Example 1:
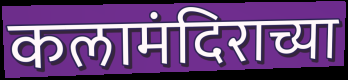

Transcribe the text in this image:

कलामंदिराच्या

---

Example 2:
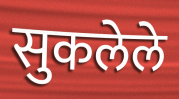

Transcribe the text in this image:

सुकलेले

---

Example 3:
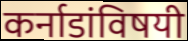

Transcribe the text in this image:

कर्नाडांविषयी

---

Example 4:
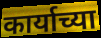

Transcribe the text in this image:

कार्याच्या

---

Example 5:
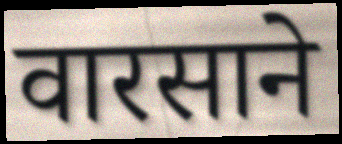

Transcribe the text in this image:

वारसाने